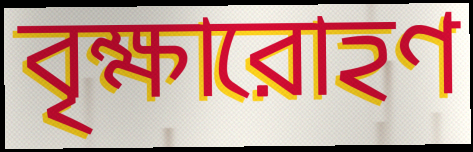
বৃক্ষারোহণ